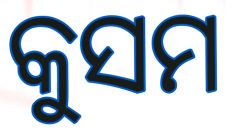
କୁସମ